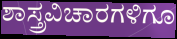
ಶಾಸ್ತ್ರವಿಚಾರಗಳಿಗೂ